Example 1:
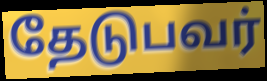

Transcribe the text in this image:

தேடுபவர்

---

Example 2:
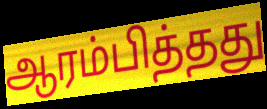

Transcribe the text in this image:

ஆரம்பித்தது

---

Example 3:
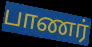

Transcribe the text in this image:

பாணர்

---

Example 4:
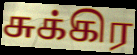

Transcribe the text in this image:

சுக்கிர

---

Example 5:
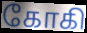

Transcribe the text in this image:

கோகி